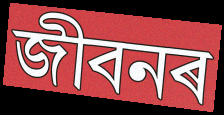
জীবনৰ